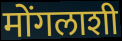
मोंगलाशी